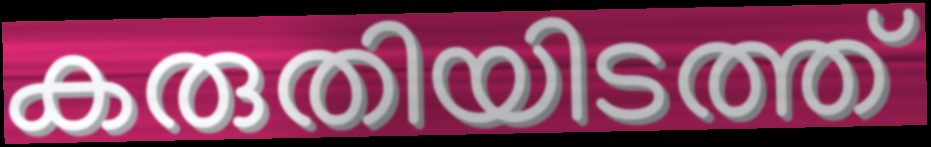
കരുതിയിടത്ത്